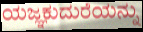
ಯಜ್ಞಕುದುರೆಯನ್ನು